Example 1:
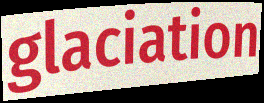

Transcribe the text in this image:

glaciation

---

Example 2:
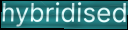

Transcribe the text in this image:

hybridised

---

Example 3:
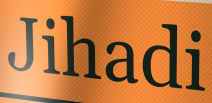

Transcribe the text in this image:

Jihadi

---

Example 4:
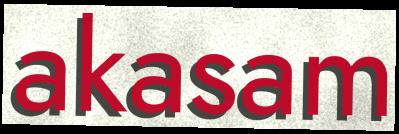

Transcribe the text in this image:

akasam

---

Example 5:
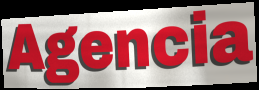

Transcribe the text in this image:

Agencia